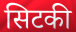
सिटकी